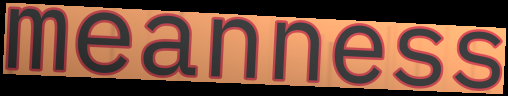
meanness